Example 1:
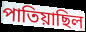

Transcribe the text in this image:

পাতিয়াছিল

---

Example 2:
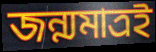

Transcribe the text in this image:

জন্মমাত্রই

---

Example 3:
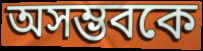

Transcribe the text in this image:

অসম্ভবকে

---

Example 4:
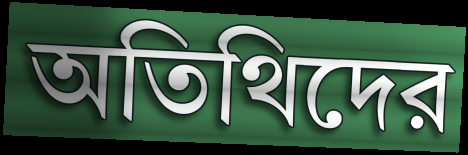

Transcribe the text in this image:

অতিথিদের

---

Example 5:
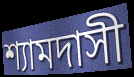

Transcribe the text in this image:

শ্যামদাসী